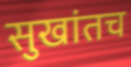
सुखांतच